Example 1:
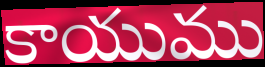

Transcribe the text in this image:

కాయుము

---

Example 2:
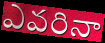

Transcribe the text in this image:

ఎవరినా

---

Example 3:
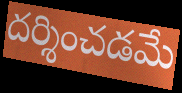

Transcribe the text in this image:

దర్శించడమే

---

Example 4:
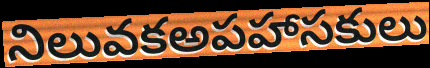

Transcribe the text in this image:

నిలువకఅపహాసకులు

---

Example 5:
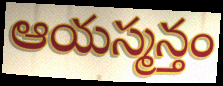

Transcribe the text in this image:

ఆయస్మన్తం